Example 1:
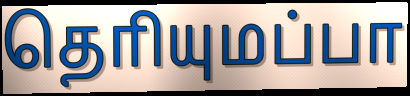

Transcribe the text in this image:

தெரியுமப்பா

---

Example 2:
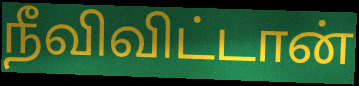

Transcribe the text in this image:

நீவிவிட்டான்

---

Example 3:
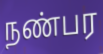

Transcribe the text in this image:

நண்பர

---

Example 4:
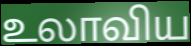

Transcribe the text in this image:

உலாவிய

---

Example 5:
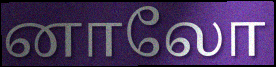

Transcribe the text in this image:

னாலோ